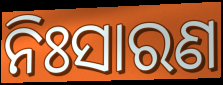
ନିଃସାରଣ